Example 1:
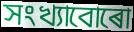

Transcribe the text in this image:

সংখ্যাবোৰো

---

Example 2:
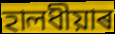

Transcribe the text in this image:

হালধীয়াৰ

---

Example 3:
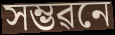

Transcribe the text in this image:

সম্ভৱনে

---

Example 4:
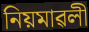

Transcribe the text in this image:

নিয়মাৱলী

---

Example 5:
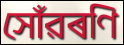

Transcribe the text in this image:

সোঁৱৰণি